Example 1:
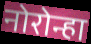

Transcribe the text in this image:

नोरोन्हा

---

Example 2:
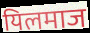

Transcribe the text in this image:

यिलमाज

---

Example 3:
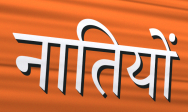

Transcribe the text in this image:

नातियों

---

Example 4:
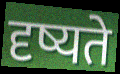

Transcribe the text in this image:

दृष्यते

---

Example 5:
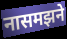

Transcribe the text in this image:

नासमझने